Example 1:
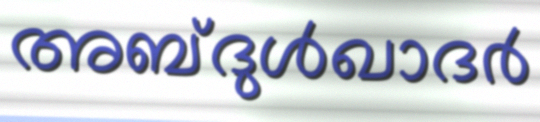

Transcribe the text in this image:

അബ്ദുൾഖാദർ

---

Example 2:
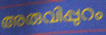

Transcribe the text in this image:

അരുവിപ്പുറം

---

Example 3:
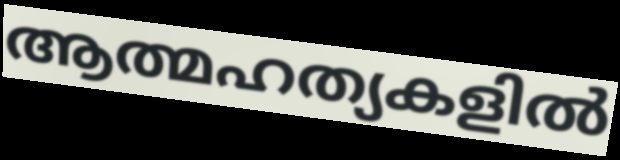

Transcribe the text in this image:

ആത്മഹത്യകളിൽ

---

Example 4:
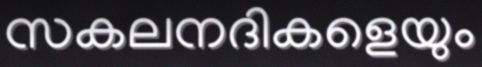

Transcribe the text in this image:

സകലനദികളെയും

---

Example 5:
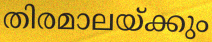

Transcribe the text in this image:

തിരമാലയ്ക്കും